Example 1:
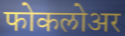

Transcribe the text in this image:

फोकलोअर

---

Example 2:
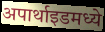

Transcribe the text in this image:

अपार्थाइडमध्ये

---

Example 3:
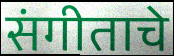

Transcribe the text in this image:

संगीताचे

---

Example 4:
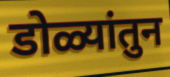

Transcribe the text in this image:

डोळ्यांतुन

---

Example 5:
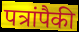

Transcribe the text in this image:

पत्रांपैकी